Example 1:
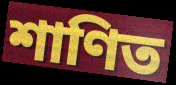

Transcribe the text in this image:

শাণিত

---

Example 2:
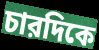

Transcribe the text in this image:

চারদিকে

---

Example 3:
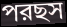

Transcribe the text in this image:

পরছস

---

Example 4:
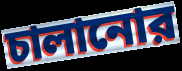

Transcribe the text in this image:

চালানোর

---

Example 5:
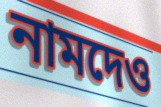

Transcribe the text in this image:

নামদেও